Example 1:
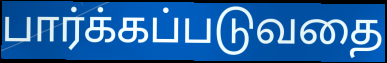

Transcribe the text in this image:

பார்க்கப்படுவதை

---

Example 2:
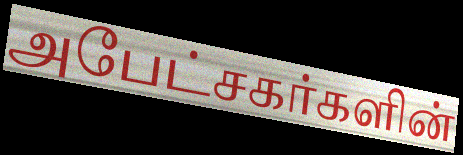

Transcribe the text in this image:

அபேட்சகர்களின்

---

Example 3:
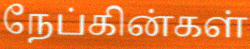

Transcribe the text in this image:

நேப்கின்கள்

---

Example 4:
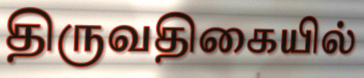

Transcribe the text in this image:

திருவதிகையில்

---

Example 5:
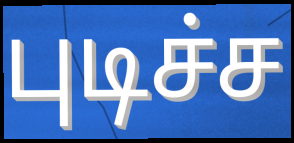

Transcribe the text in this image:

புடிச்ச